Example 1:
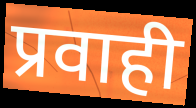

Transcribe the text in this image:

प्रवाही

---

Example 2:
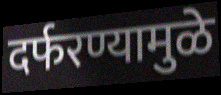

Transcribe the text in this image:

दर्फरण्यामुळे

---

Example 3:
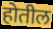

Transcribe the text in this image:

होतील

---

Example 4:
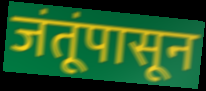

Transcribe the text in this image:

जंतूंपासून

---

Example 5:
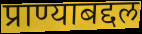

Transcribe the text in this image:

प्राण्याबद्दल